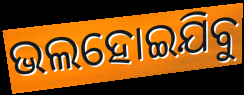
ଭଲହୋଇଯିବୁ